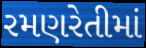
રમણરેતીમાં